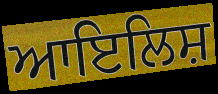
ਆਇਲਿਸ਼